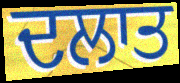
ਦਲਾਤ